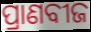
ପ୍ରାଣବୀଜ